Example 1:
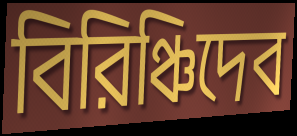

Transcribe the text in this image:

বিরিঞ্চিদেব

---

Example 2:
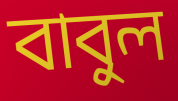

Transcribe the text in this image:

বাবুল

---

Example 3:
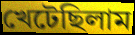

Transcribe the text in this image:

খেটেছিলাম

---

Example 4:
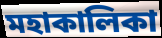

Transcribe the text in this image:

মহাকালিকা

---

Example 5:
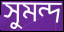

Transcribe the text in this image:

সুমন্দ